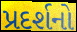
પ્રદર્શનો